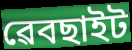
ৱেবছাইট